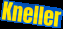
Kneller